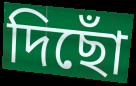
দিছোঁ